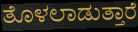
ತೊಳಲಾಡುತ್ತಾರೆ